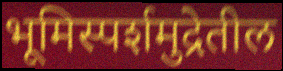
भूमिस्पर्शमुद्रेतील